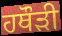
ਹਥੌੜੀ